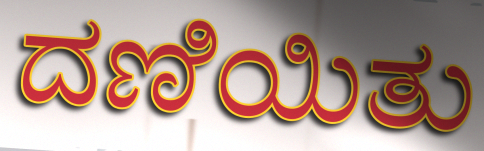
ದಣಿಯಿತು